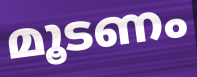
മൂടണം